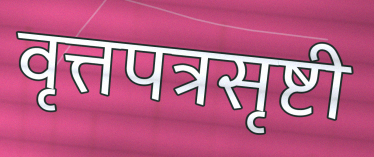
वृत्तपत्रसृष्टी